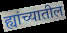
ह्यांच्यातील